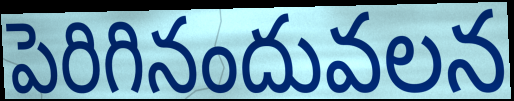
పెరిగినందువలన